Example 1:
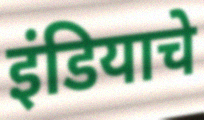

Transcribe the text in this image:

इंडियाचे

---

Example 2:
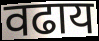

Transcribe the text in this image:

वढाय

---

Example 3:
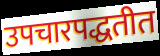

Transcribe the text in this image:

उपचारपद्धतीत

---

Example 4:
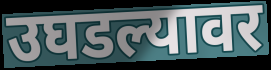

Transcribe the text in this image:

उघडल्यावर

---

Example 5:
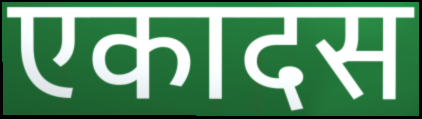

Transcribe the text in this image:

एकादस